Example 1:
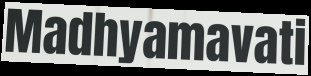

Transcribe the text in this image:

Madhyamavati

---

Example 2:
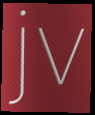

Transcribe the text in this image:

jv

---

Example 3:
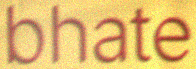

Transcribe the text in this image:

bhate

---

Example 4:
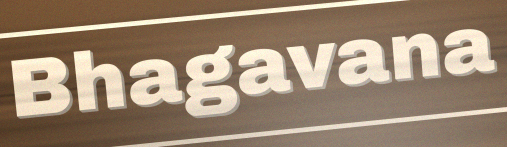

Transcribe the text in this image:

Bhagavana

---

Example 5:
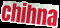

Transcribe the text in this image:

chihna